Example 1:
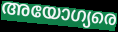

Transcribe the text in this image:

അയോഗ്യരെ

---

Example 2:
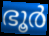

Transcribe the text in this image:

ഭൂർ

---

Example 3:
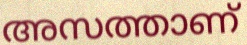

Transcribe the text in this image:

അസത്താണ്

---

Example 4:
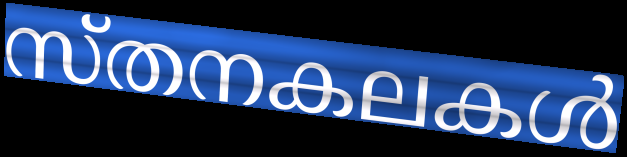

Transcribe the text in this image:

സ്തനകലകൾ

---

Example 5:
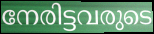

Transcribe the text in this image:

നേരിട്ടവരുടെ